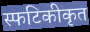
स्फटिकीकृत